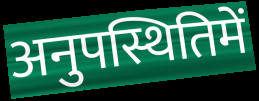
अनुपस्थितिमें